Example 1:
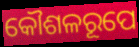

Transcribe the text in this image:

କୌଶଳରୂପେ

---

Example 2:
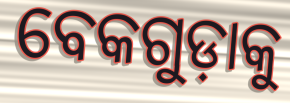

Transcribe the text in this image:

ବେକଗୁଡ଼ାକୁ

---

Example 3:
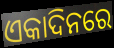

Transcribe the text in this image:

ଏକାଦିନରେ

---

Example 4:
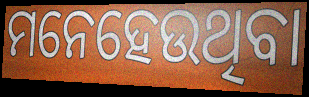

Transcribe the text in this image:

ମନେହେଉଥିବା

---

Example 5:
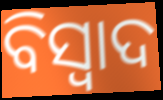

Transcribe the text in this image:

ବିସ୍ଵାଦ